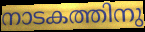
നാടകത്തിനു